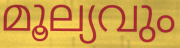
മൂല്യവും